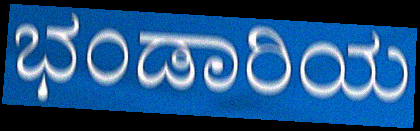
ಭಂಡಾರಿಯ